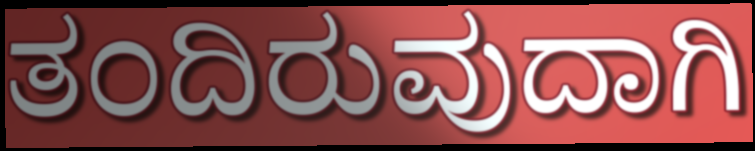
ತಂದಿರುವುದಾಗಿ